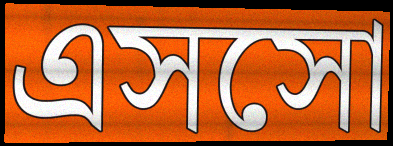
এসসো